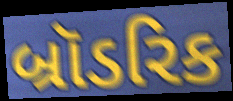
બ્રૉડરિક